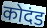
कोदंड